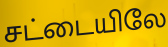
சட்டையிலே